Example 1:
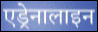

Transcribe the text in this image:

एड्रेनालाइन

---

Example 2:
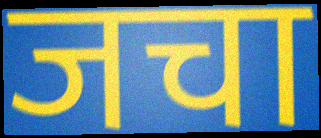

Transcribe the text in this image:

जचा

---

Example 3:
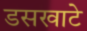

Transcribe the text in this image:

डसखाटे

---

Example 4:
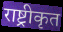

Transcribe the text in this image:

राष्ट्रीकृत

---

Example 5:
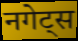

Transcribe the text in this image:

नगेट्स